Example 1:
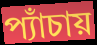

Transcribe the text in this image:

প্যাঁচায়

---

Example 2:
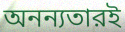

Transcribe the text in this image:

অনন্যতারই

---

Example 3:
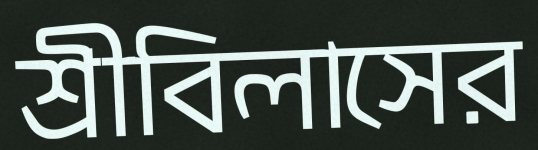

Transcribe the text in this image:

শ্রীবিলাসের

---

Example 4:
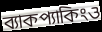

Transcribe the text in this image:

ব্যাকপ্যাকিংও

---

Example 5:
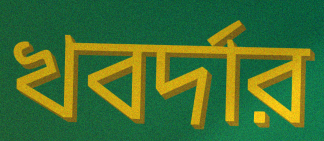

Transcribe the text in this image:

খবর্দার